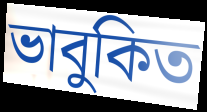
ভাবুকিত